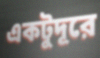
একটুদূরে